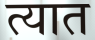
त्यात